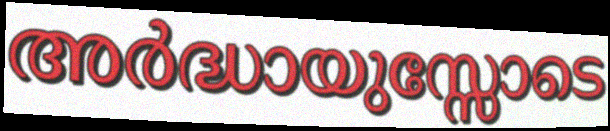
അർദ്ധായുസ്സോടെ